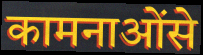
कामनाओंसे